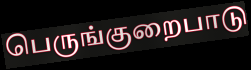
பெருங்குறைபாடு